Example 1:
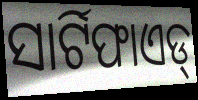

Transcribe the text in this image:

ସାର୍ଟିଫାଏଡ୍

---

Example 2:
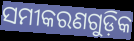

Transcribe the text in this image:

ସମୀକରଣଗୁଡ଼ିକ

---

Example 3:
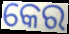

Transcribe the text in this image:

କେର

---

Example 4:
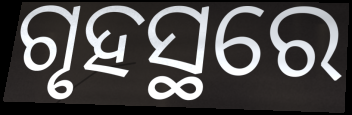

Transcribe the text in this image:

ଗୃହସ୍ଥରେ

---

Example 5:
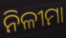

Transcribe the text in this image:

ନିଳୀମା